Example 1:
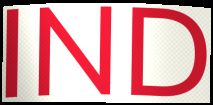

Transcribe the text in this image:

IND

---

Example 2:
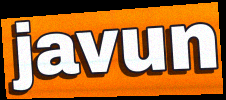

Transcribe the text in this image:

javun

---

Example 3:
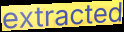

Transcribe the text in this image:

extracted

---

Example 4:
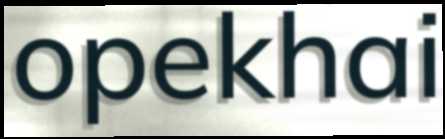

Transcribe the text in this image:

opekhai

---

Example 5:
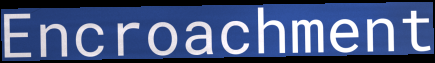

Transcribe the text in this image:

Encroachment